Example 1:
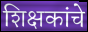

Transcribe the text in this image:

शिक्षकांचे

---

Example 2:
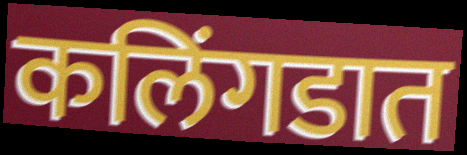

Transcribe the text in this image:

कलिंगडात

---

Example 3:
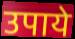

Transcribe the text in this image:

उपाये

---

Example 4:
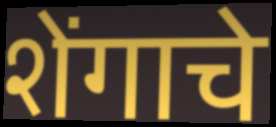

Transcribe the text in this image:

शेंगाचे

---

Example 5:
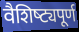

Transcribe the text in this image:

वैशिष्‍ट्यपूर्ण